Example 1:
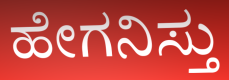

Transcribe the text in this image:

ಹೇಗನಿಸ್ತು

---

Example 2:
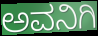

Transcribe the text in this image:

ಅವನಿಗಿ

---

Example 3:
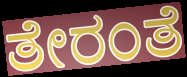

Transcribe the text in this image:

ತೇರಂತೆ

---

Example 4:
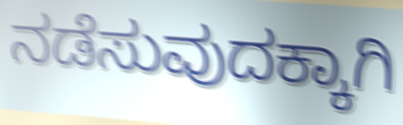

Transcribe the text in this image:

ನಡೆಸುವುದಕ್ಕಾಗಿ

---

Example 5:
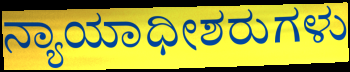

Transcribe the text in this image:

ನ್ಯಾಯಾಧೀಶರುಗಳು